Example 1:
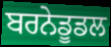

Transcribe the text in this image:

ਬਰਨੇਡੂਡਲ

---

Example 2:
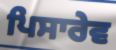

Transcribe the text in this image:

ਪਿਸਾਰੇਵ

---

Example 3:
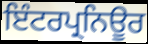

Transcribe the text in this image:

ਇੰਟਰਪ੍ਰਨਿਊਰ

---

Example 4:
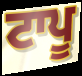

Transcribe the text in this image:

ਟਾਪੂ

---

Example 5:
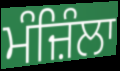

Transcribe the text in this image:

ਮੰਜ਼ਿੰਲਾ